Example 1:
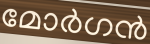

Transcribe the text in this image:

മോർഗൻ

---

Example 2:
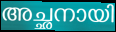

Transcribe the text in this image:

അച്ഛനായി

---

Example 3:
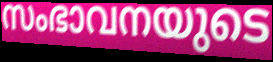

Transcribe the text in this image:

സംഭാവനയുടെ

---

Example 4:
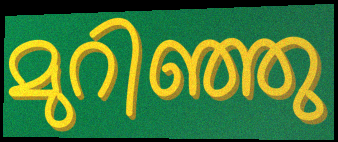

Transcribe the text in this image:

മുറിഞ്ഞു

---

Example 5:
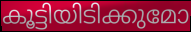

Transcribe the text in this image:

കൂട്ടിയിടിക്കുമോ